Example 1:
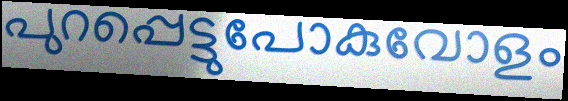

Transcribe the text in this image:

പുറപ്പെട്ടുപോകുവോളം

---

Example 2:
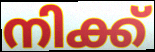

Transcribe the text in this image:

നിക്ക്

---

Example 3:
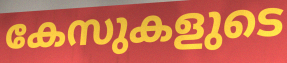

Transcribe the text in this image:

കേസുകളുടെ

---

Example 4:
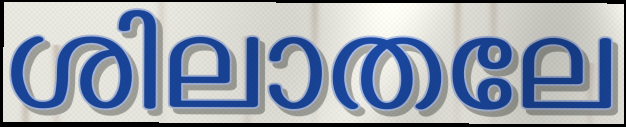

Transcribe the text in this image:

ശിലാതലേ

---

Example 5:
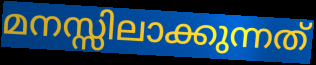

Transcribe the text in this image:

മനസ്സിലാക്കുന്നത്